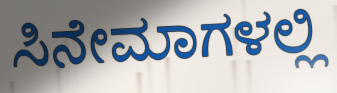
ಸಿನೇಮಾಗಳಲ್ಲಿ